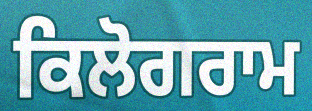
ਕਿਲੋਗਰਾਮ